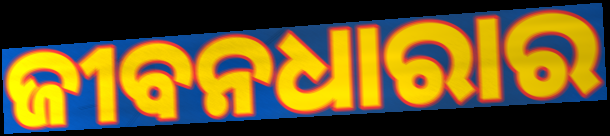
ଜୀବନଧାରାର